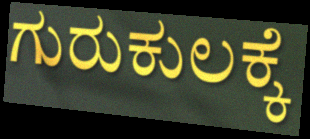
ಗುರುಕುಲಕ್ಕೆ